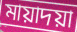
মায়াদয়া